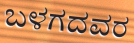
ಬಳಗದವರ